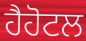
ਹੈਹੋਟਲ